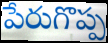
పేరుగొప్ప